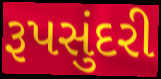
રૂપસુંદરી